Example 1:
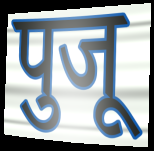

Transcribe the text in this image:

पुजू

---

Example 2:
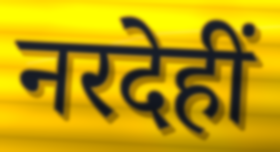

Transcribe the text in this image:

नरदेहीं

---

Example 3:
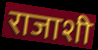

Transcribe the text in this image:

राजाशी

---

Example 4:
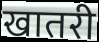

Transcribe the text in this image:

खातरी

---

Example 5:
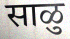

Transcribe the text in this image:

साळु